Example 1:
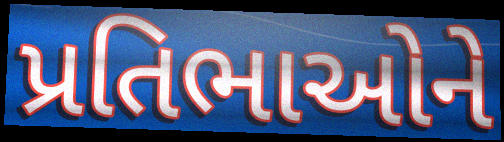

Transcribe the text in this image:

પ્રતિભાઓને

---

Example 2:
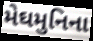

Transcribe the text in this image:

મેઘમુનિના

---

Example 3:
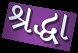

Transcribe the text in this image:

શ્રદ્ધા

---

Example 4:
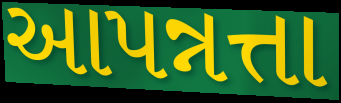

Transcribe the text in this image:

આપન્નત્તા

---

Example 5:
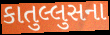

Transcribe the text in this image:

કાતુલ્લુસના